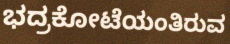
ಭದ್ರಕೋಟೆಯಂತಿರುವ